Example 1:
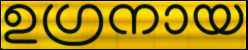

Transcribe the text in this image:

ഉഗ്രനായ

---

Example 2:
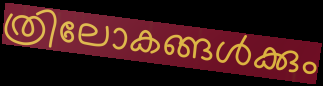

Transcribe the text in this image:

ത്രിലോകങ്ങൾക്കും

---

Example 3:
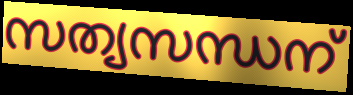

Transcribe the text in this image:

സത്യസന്ധന്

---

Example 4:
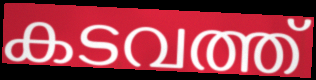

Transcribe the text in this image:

കടവത്ത്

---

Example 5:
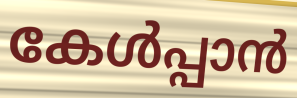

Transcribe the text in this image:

കേൾപ്പാൻ